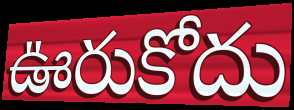
ఊరుకోదు